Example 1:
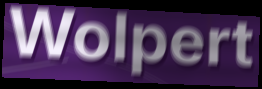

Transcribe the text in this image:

Wolpert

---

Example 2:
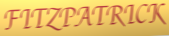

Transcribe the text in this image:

FITZPATRICK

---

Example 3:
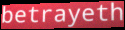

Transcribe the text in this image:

betrayeth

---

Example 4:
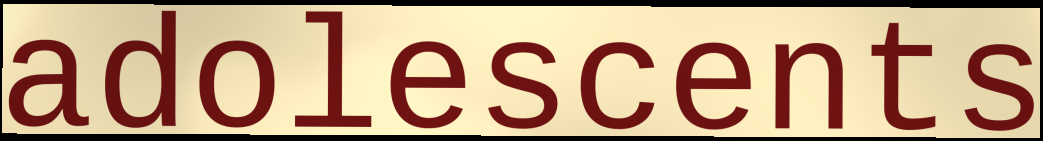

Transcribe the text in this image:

adolescents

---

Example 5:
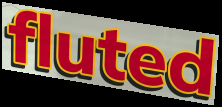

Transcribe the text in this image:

fluted